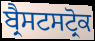
ਬ੍ਰੈਸਟਸਟ੍ਰੋਕ